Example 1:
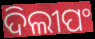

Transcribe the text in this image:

ଦିଲୀପଂ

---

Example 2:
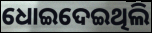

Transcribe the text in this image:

ଧୋଇଦେଇଥିଲି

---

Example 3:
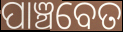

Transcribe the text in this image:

ପାଞ୍ଚବେତ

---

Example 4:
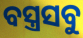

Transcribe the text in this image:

ବସ୍ତ୍ରସବୁ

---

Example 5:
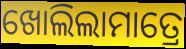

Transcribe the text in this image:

ଖୋଲିଲାମାତ୍ରେ